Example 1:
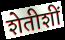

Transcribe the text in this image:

शेतीशीं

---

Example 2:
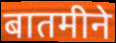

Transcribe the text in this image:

बातमीने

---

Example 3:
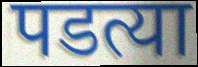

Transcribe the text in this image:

पडत्या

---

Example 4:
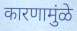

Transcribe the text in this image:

कारणामुंळे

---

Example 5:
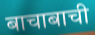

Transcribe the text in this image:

बाचाबाची